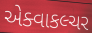
એક્વાકલ્ચર